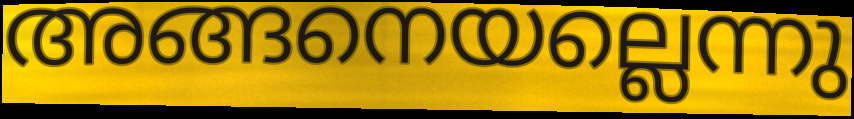
അങ്ങനെയല്ലെന്നു